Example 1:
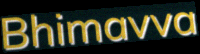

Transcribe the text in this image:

Bhimavva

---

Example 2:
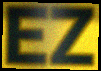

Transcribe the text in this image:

EZ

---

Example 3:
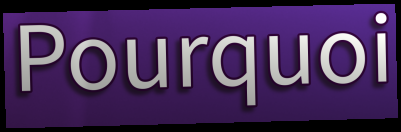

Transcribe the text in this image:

Pourquoi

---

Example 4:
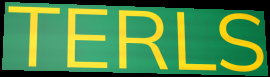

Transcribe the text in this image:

TERLS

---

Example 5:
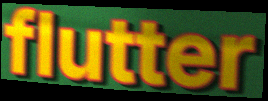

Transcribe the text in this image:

flutter